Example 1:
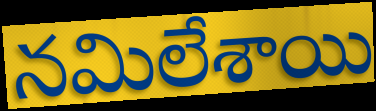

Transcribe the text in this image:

నమిలేశాయి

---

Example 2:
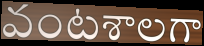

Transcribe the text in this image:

వంటశాలగా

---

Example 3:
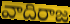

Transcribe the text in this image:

వాదిరాజ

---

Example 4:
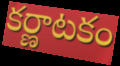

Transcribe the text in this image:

కర్ణాటకం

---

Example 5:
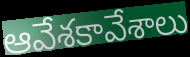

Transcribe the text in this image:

ఆవేశకావేశాలు